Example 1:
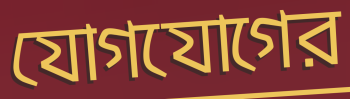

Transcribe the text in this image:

যোগযোগের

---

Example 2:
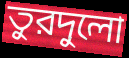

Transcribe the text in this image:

তুরদুলো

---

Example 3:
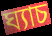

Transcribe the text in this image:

ঘ্যাচ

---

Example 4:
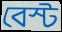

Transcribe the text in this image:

বেস্ট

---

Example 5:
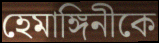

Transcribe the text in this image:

হেমাঙ্গিনীকে